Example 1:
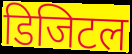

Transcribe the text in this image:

डिजिटल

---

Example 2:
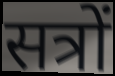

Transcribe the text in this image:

सत्रों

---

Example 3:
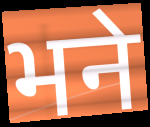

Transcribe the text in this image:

भने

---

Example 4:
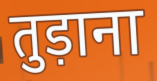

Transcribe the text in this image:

तुड़ाना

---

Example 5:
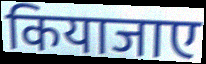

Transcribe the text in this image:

कियाजाए